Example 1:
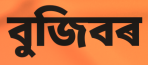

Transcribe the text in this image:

বুজিবৰ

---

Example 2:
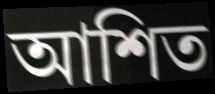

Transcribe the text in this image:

আশিত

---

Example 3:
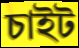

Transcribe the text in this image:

চাইট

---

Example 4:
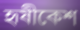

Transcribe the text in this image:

হৃষীকেশ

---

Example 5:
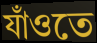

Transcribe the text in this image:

যাঁওতে